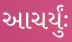
આચર્યુંઃ